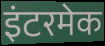
इंटरमेक